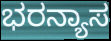
ಭರನ್ಯಾಸ